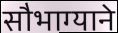
सौभाग्याने